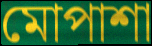
মোপাশা